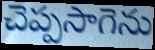
చెప్పసాగెను